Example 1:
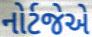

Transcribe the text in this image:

નોર્ટજેએ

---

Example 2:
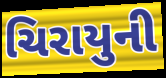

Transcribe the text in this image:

ચિરાયુની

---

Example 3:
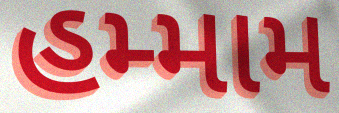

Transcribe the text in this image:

હમ્મામ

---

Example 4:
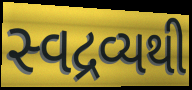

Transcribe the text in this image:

સ્વદ્રવ્યથી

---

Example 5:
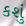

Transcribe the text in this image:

કશું